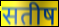
सतीष